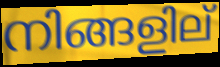
നിങ്ങളില്